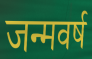
जन्मवर्ष